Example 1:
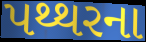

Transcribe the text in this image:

પથ્થરના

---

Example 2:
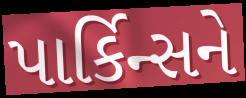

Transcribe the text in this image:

પાર્કિન્સને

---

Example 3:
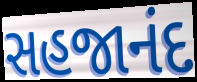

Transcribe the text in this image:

સહજાનંદ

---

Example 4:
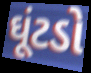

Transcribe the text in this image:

ઘૂંટડો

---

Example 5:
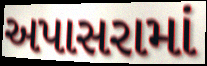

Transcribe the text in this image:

અપાસરામાં